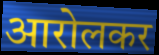
आरोलकर